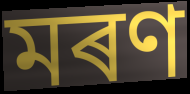
মৰণ